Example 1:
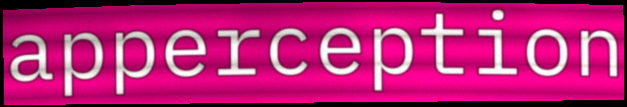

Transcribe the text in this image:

apperception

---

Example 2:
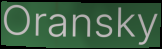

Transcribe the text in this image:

Oransky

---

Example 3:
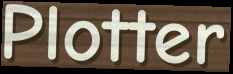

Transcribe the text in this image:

Plotter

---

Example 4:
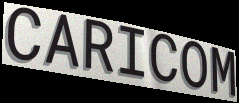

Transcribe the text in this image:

CARICOM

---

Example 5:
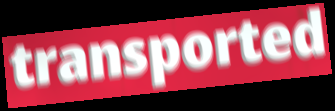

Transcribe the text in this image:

transported